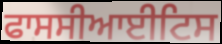
ਫਾਸਸੀਆਈਟਿਸ